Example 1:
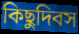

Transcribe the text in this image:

কিছুদিবস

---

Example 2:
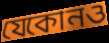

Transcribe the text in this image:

যেকোনও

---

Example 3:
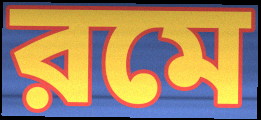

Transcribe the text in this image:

রমে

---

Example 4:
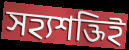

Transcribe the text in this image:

সহ্যশক্তিই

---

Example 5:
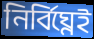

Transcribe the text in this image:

নির্বিঘ্নেই